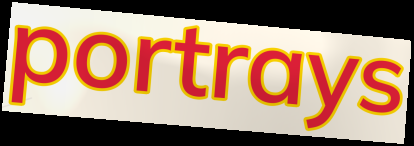
portrays